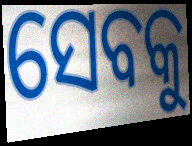
ସେବକୁ